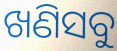
ଖଣିସବୁ